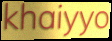
khaiyyo